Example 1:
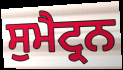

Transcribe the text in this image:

ਸੁਮੈਟ੍ਰਨ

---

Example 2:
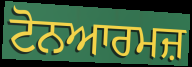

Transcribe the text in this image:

ਟੋਨਆਰਮਜ਼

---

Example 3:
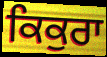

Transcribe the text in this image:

ਕਿਕੁਰਾ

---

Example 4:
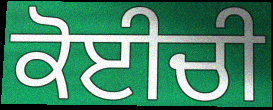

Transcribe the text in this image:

ਕੋਈਚੀ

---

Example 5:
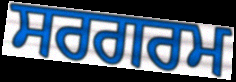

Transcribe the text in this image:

ਸਰਗਰਮ